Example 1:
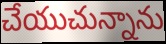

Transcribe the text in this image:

చేయుచున్నాను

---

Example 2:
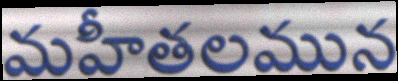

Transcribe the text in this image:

మహీతలమున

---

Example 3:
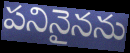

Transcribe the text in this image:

పనినైనను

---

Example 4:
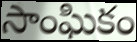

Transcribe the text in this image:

సాంఘికం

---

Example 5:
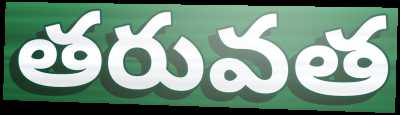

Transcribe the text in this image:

తరువత